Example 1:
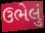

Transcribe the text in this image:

ઉભેલું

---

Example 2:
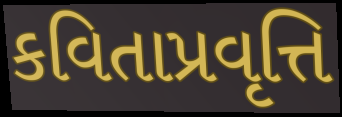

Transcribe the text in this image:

કવિતાપ્રવૃત્તિ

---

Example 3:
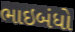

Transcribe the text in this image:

ભાઇબંધો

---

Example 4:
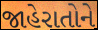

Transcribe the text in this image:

જાહેરાતોને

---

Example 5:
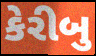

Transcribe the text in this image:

કેરીબુ